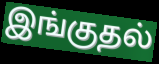
இங்குதல்